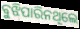
ବୁଝିପାରିନଥିଲେ